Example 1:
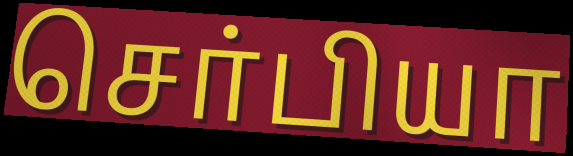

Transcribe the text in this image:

செர்பியா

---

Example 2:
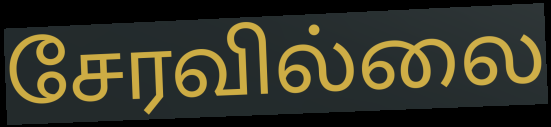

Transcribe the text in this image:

சேரவில்லை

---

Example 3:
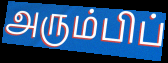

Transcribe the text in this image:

அரும்பிப்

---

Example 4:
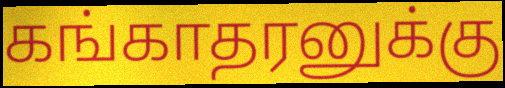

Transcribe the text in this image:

கங்காதரனுக்கு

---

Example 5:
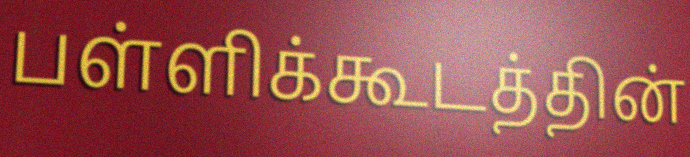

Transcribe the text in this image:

பள்ளிக்கூடத்தின்